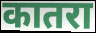
कातरा